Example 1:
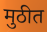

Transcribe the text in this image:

मुठीत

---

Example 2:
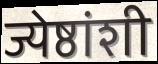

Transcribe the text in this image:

ज्येष्ठांशी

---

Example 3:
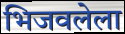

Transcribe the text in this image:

भिजवलेला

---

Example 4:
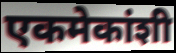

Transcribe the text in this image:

एकमेकांशी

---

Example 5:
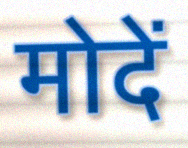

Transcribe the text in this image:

मोदें